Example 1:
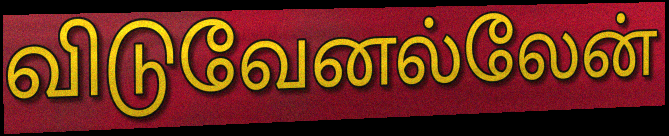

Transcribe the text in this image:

விடுவேனல்லேன்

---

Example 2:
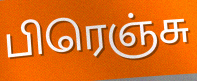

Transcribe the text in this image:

பிரெஞ்சு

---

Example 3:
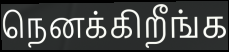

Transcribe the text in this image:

நெனக்கிறீங்க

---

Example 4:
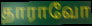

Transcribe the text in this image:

தாராவோ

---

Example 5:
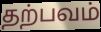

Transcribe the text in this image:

தற்பவம்